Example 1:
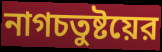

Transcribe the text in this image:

নাগচতুষ্টয়ের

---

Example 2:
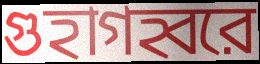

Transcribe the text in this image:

গুহাগহ্বরে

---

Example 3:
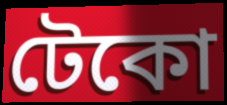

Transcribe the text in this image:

টেকো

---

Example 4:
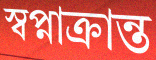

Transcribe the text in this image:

স্বপ্নাক্রান্ত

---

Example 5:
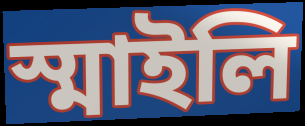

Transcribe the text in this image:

স্মাইলি